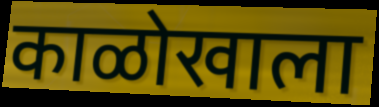
काळोखाला